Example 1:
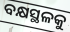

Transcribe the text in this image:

ବକ୍ଷସ୍ଥଳକୁ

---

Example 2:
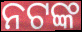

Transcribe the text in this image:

ନଟଙ୍କ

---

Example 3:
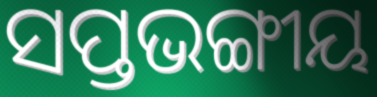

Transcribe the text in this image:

ସପ୍ତଭଙ୍ଗୀୟ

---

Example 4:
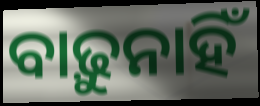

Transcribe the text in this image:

ବାଢ଼ୁନାହିଁ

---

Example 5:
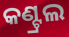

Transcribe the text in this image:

କଣ୍ଟ୍ରଲ